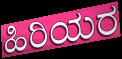
ಹಿರಿಯರ